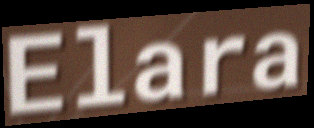
Elara